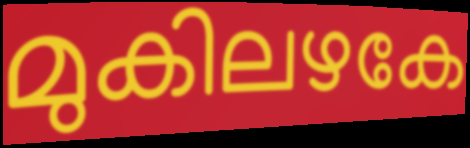
മുകിലഴകേ